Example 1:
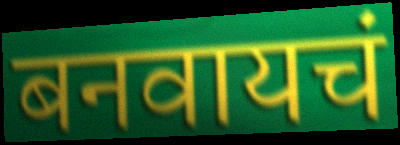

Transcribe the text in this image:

बनवायचं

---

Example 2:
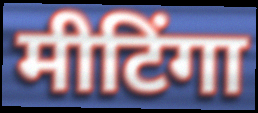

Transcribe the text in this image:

मीटिंगा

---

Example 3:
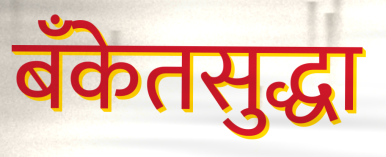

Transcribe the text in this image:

बँकेतसुद्धा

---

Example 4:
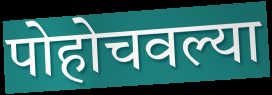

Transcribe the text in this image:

पोहोचवल्या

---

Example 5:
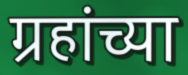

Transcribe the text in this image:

ग्रहांच्या